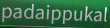
padaippukal